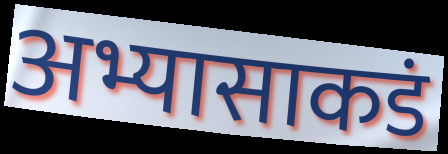
अभ्यासाकडं